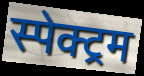
स्पेक्ट्रम